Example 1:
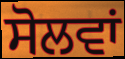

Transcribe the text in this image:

ਸੋਲਵਾਂ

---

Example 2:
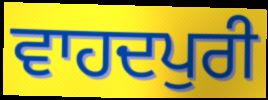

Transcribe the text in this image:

ਵਾਹਦਪੁਰੀ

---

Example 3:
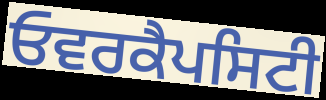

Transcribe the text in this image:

ਓਵਰਕੈਪਸਿਟੀ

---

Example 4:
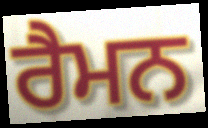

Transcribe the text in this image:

ਰੈਮਨ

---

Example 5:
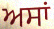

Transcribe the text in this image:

ਅਸਾਂ